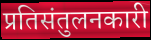
प्रतिसंतुलनकारी